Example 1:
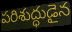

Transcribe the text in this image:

పరిశుద్ధుడైన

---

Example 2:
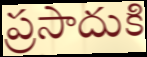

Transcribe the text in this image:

ప్రసాదుకి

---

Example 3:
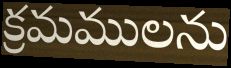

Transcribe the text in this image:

క్రమములను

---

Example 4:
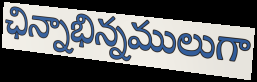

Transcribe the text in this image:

ఛిన్నాభిన్నములుగా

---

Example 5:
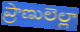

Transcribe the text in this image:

ప్రాణులెల్లా